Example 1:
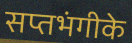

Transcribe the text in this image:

सप्तभंगीके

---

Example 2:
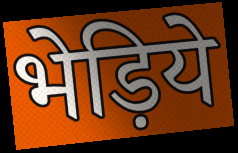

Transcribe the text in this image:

भेड़िये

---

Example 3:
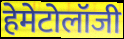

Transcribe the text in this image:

हेमेटोलॉजी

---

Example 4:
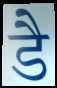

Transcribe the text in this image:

डै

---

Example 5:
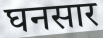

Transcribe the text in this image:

घनसार